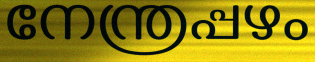
നേന്ത്രപ്പഴം